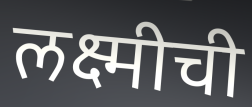
लक्ष्मीची